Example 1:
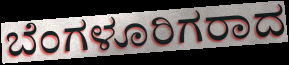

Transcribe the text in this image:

ಬೆಂಗಳೂರಿಗರಾದ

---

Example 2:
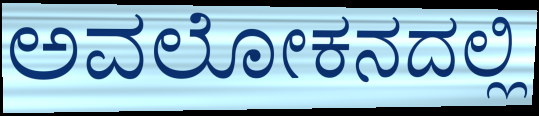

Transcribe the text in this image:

ಅವಲೋಕನದಲ್ಲಿ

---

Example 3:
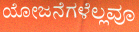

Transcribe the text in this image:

ಯೋಜನೆಗಳೆಲ್ಲವೂ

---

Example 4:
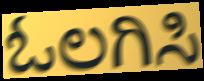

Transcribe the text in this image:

ಓಲಗಿಸಿ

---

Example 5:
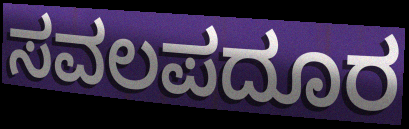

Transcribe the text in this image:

ಸವಲಪದೂರ